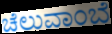
ಚೆಲುವಾಂಬೆ